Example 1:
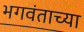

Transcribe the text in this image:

भगवंताच्या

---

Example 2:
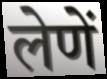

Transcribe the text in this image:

लेणें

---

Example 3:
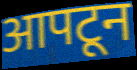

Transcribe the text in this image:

आपटून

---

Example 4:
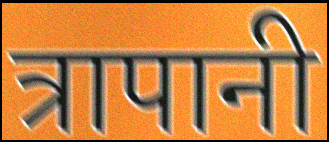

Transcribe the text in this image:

त्रापानी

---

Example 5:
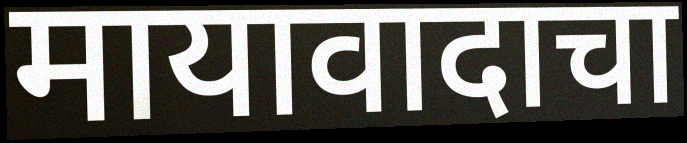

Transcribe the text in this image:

मायावादाचा